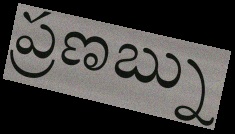
ప్రణబ్ను